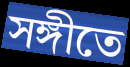
সঙ্গীতে